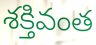
శక్తివంత